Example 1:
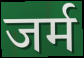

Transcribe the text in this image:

जर्म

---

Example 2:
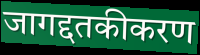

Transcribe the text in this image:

जागद्दतकीकरण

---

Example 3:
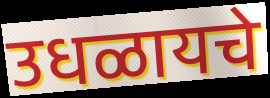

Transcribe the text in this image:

उधळायचे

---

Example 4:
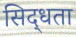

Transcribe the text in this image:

सिद्‌धता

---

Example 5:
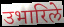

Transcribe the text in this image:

उभारिले